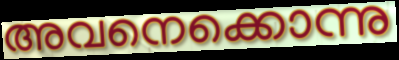
അവനെക്കൊന്നു